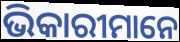
ଭିକାରୀମାନେ